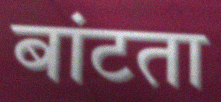
बांटता